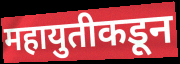
महायुतीकडून